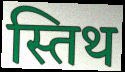
स्तिथ